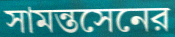
সামন্তসেনের